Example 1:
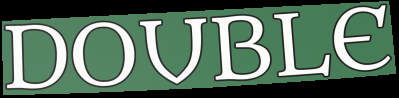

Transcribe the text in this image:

DOUBLE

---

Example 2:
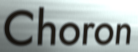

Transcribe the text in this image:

Choron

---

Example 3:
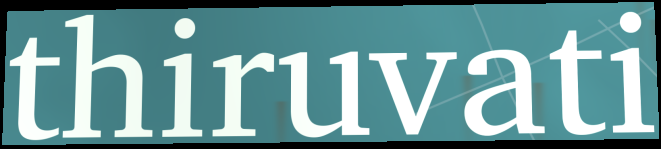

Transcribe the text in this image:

thiruvati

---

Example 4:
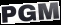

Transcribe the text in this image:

PGM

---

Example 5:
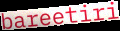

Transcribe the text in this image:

bareetiri